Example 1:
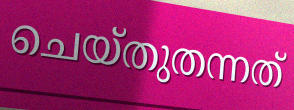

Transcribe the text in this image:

ചെയ്തുതന്നത്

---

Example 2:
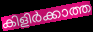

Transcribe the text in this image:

കിളിർക്കാത്ത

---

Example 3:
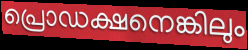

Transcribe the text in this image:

പ്രൊഡക്ഷനെങ്കിലും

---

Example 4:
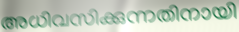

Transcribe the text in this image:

അധിവസിക്കുന്നതിനായി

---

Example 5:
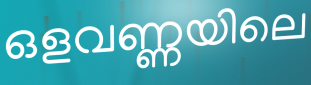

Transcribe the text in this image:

ഒളവണ്ണയിലെ